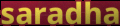
saradha